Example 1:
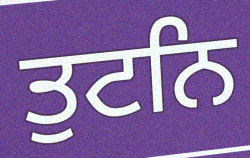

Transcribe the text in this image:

ਤੁਟਨਿ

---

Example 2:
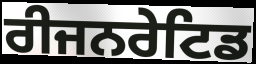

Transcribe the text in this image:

ਰੀਜਨਰੇਟਿਡ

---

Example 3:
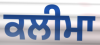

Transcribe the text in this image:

ਕਲੀਮਾ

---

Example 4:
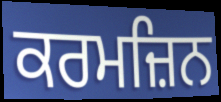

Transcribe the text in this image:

ਕਰਮਜ਼ਿਨ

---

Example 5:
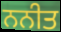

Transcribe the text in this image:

ਨਨੀਤ